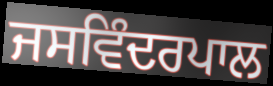
ਜਸਵਿੰਦਰਪਾਲ